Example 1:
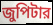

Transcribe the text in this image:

জুপিটার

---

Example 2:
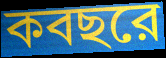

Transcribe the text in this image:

কবছরে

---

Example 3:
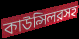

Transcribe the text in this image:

কাউন্সিলরসহ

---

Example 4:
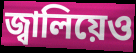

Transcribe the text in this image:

জ্বালিয়েও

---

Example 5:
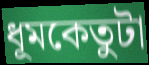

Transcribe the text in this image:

ধূমকেতুটা